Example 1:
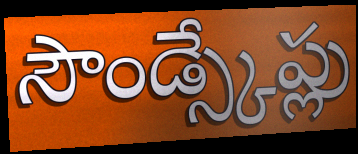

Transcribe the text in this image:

సౌండ్స్కేప్లు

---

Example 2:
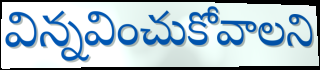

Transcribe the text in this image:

విన్నవించుకోవాలని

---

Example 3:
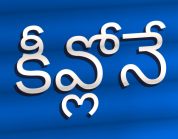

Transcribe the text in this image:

కీవ్లోనే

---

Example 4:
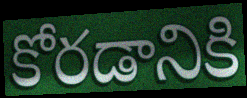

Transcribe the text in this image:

కోరడానికి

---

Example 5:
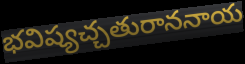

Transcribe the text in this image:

భవిష్యచ్చతురాననాయ